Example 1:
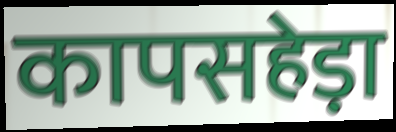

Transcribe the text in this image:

कापसहेड़ा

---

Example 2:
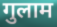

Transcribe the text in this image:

गुलाम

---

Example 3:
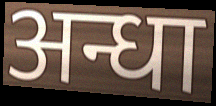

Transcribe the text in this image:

अन्धा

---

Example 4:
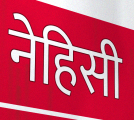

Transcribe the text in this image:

नेहिसी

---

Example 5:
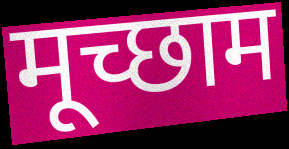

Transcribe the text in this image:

मूच्छाम